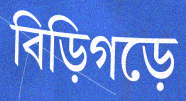
বিড়িগড়ে